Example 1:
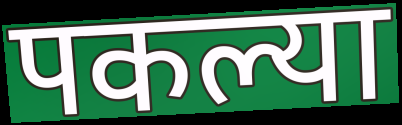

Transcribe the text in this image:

पकल्या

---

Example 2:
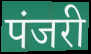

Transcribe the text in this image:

पंजरी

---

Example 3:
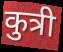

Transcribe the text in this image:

कुत्री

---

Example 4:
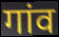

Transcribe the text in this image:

गांव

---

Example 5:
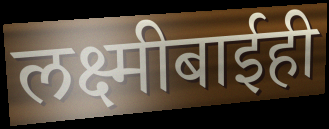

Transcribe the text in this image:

लक्ष्मीबाईही